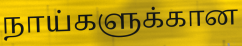
நாய்களுக்கான